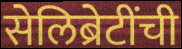
सेलिब्रेटींची